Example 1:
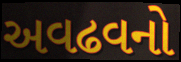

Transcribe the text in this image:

અવઢવનો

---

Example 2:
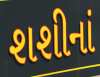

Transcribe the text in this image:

શશીનાં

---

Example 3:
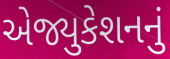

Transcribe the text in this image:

એજ્યુકેશનનું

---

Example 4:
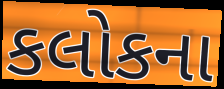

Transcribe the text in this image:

કલોકના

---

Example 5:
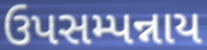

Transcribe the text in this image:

ઉપસમ્પન્નાય